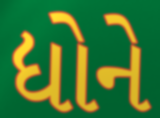
દ્યોને